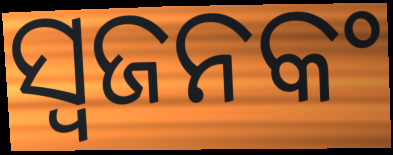
ସ୍ଵଜନକଂ